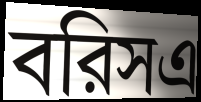
বরিসএ